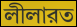
লীলারত